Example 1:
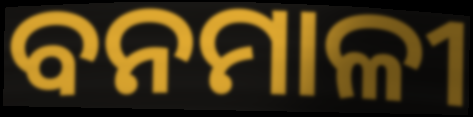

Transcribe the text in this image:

ବନମାଳୀ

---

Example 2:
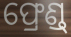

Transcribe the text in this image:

ଫ୍ରେଣ୍ଡ୍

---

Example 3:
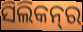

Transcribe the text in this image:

ସିଲିକନ୍‌ର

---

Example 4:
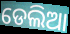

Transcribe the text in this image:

ଡେଲିଆ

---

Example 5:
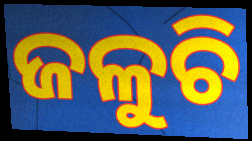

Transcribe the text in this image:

ଜଳୁଚି